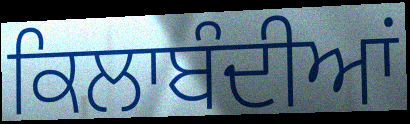
ਕਿਲਾਬੰਦੀਆਂ